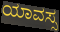
ಯಾವಸ್ಸ